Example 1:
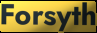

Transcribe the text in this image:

Forsyth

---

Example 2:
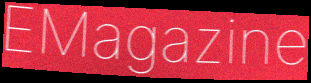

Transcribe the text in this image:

EMagazine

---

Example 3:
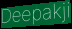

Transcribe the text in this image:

Deepakji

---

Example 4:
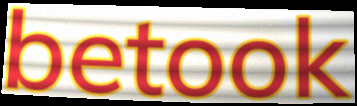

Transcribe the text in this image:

betook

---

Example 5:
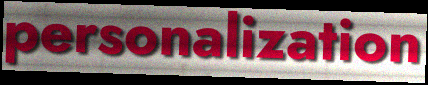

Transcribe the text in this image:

personalization